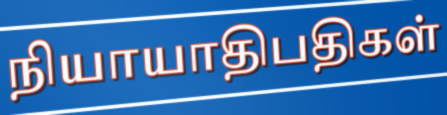
நியாயாதிபதிகள்